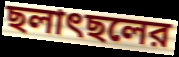
ছলাৎছলের